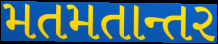
મતમતાન્તર